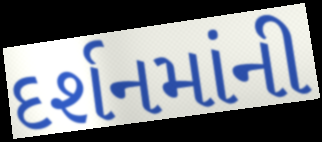
દર્શનમાંની